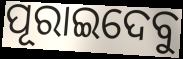
ପୂରାଇଦେବୁ